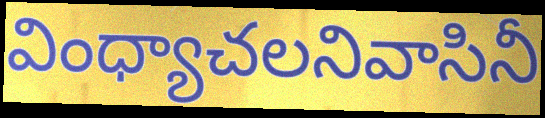
వింధ్యాచలనివాసినీ